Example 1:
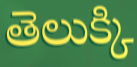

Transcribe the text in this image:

తెలుక్కి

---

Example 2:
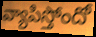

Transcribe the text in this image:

వ్యాపిస్తోందో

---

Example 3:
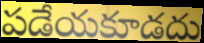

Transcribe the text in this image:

పడేయకూడదు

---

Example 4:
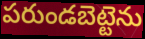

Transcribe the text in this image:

పరుండబెట్టెను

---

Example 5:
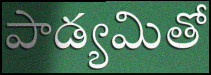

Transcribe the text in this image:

పాడ్యమితో